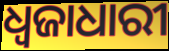
ଧ୍ଵଜାଧାରୀ